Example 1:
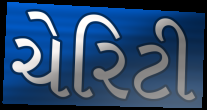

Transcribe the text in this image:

ચેરિટી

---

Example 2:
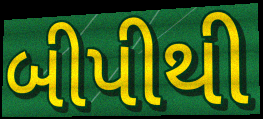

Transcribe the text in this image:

બીપીથી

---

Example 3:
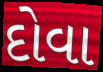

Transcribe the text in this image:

દોવા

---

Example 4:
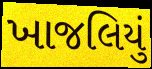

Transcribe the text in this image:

ખાજલિયું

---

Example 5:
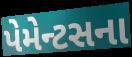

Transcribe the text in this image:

પેમેન્ટસના